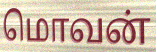
மொவன்